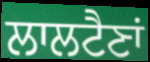
ਲਾਲਟੈਣਾਂ